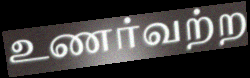
உணர்வற்ற